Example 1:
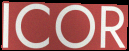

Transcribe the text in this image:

ICOR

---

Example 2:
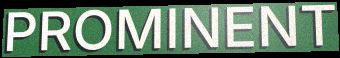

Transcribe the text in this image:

PROMINENT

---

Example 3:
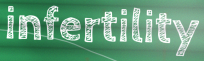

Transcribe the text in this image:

infertility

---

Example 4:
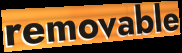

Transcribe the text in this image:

removable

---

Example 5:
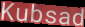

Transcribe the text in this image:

Kubsad